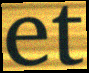
et